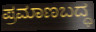
ಪ್ರಮಾಣಬದ್ಧ